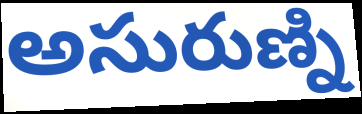
అసురుణ్ని